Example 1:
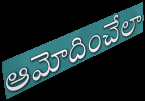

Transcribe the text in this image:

ఆమోదించేలా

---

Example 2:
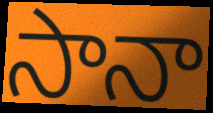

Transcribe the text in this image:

సానా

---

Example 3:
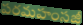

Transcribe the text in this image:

పరమహంసజీ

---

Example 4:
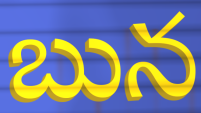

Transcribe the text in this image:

బున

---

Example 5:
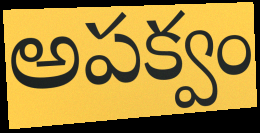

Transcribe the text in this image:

అపక్వం